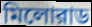
মিলোরাড